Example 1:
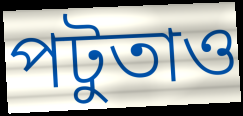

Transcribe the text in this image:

পটুতাও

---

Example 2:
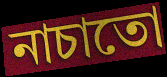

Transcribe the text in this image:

নাচাতো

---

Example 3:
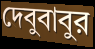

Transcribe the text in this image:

দেবুবাবুর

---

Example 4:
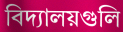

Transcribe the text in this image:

বিদ্যালয়গুলি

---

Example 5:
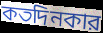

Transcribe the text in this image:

কতদিনকার